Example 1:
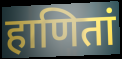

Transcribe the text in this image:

हाणितां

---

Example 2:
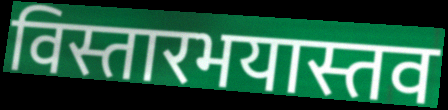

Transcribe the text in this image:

विस्तारभयास्तव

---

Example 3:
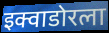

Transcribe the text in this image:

इक्वाडोरला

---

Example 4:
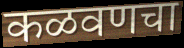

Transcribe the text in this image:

कळवणचा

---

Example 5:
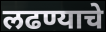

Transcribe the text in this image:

लढण्याचे